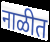
नाळीत